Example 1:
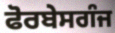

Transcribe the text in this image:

ਫੋਰਬੇਸਗੰਜ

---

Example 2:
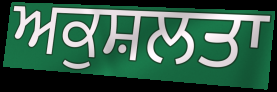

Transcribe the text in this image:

ਅਕੁਸ਼ਲਤਾ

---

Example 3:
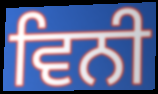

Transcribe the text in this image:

ਵਿਨੀ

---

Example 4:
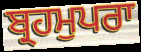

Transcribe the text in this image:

ਬ੍ਰਹਮੁਪਰਾ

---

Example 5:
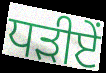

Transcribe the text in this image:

ਧੜੀਏਂ